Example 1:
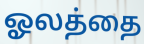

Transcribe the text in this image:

ஓலத்தை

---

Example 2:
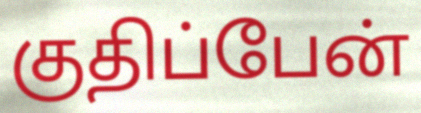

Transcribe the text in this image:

குதிப்பேன்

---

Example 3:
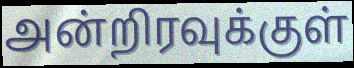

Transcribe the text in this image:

அன்றிரவுக்குள்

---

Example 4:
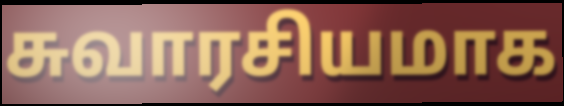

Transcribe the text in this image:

சுவாரசியமாக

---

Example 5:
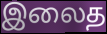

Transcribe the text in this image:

இலைத